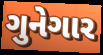
ગુનેગાર